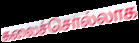
கலைச்சொல்லாக